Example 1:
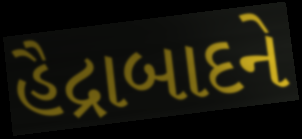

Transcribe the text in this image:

હૈદ્રાબાદને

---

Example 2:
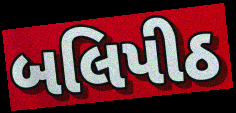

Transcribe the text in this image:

બલિપીઠ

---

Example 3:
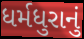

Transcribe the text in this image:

ધર્મધુરાનું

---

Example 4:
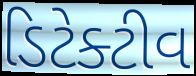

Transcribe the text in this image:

ડિટેક્ટીવ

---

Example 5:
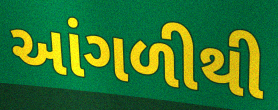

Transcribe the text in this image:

આંગળીથી